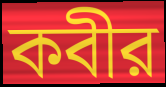
কবীর